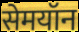
सेमयॉन